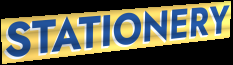
STATIONERY